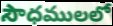
సౌధములలో